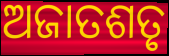
ଅଜାତଶତୃ